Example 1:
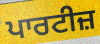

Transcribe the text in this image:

ਪਾਰਟੀਜ਼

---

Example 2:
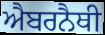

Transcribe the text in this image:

ਐਬਰਨੈਥੀ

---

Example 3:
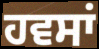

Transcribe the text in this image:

ਹਵਸਾਂ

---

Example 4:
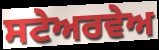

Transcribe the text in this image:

ਸਟੇਅਰਵੇਅ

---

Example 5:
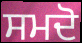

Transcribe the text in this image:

ਸਮਦੋ